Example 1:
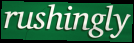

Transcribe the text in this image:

rushingly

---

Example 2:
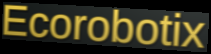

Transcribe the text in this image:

Ecorobotix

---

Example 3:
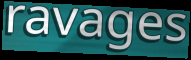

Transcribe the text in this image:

ravages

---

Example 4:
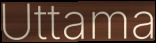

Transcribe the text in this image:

Uttama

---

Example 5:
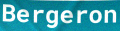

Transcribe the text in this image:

Bergeron